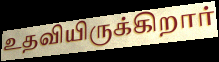
உதவியிருக்கிறார்